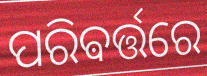
ପରିଵର୍ତ୍ତରେ